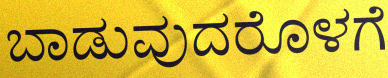
ಬಾಡುವುದರೊಳಗೆ